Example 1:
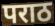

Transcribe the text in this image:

पराठ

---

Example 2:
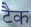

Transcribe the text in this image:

टैक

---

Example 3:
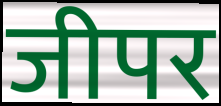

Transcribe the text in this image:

जीपर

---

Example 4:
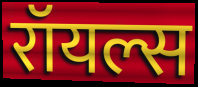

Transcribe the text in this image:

रॉयल्‍स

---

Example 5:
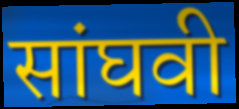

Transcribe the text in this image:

सांघवी